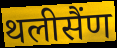
थलीसैंण